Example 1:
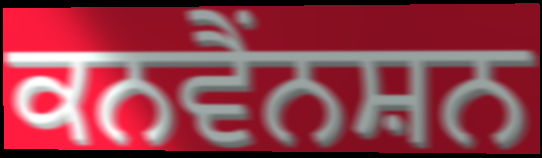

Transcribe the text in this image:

ਕਨਵੈਂਨਸ਼ਨ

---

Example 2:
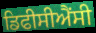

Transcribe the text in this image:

ਡਿਫੀਸੀਐਂਸੀ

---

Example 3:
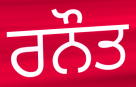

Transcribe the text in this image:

ਰਨੌਤ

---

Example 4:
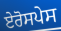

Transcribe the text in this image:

ਏਰੋਸਪੇਸ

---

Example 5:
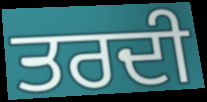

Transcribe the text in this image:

ਤਰਦੀ